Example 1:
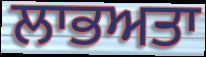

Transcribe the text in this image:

ਲਾਭਅਤਾ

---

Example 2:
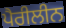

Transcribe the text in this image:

ਪੈਰੀਲੀਨ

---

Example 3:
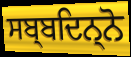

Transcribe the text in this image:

ਸਬ੍ਬਦਿਨ੍ਨੋ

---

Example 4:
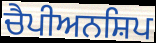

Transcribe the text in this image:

ਚੈਪੀਅਨਸ਼ਿਪ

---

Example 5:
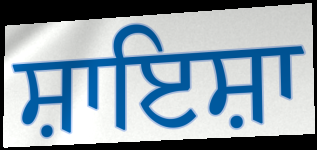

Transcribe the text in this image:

ਸ਼ਾਇਸ਼ਾ